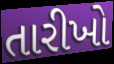
તારીખો